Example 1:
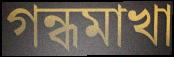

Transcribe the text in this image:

গন্ধমাখা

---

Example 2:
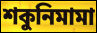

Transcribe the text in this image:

শকুনিমামা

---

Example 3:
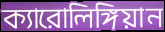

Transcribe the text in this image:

ক্যারোলিঙ্গিয়ান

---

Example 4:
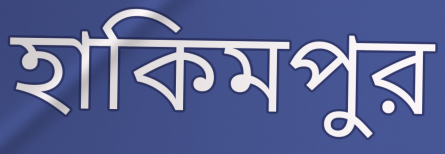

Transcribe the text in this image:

হাকিমপুর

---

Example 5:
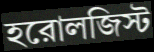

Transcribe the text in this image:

হরোলজিস্ট